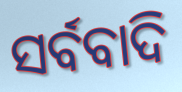
ସର୍ବବାଦି